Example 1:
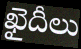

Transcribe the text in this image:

ఖైదీలు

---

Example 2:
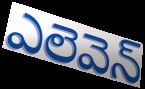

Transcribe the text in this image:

ఎలెవెన్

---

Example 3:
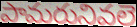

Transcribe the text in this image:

పామరునివలె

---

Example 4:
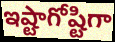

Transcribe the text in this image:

ఇష్టాగోష్టిగా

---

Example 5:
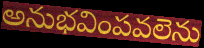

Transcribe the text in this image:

అనుభవింపవలెను